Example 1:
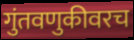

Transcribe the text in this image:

गुंतवणुकीवरच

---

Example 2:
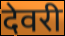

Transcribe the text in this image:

देवरी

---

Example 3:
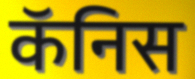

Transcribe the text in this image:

कॅनिस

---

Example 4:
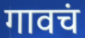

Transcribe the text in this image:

गावचं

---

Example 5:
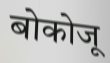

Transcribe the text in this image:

बोकोजू